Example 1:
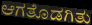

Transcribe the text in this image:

ಆಗತೊಡಗಿತು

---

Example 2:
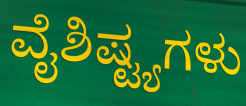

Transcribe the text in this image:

ವೈಶಿಷ್ಟ್ಯಗಳು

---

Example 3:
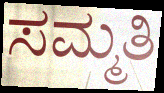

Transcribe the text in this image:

ಸಮ್ಮತಿ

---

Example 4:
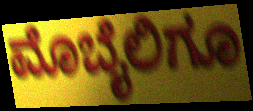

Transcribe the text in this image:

ಮೊಬೈಲಿಗೂ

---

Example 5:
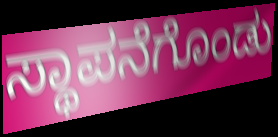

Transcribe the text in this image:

ಸ್ಥಾಪನೆಗೊಂಡು